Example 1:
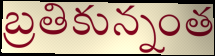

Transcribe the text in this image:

బ్రతికున్నంత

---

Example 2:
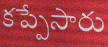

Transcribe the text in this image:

కప్పేసారు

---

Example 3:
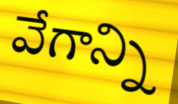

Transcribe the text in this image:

వేగాన్ని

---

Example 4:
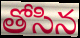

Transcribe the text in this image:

తోసిన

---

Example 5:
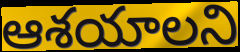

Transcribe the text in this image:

ఆశయాలని